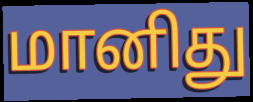
மானிது